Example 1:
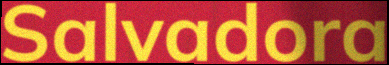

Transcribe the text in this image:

Salvadora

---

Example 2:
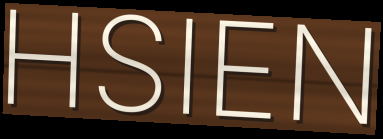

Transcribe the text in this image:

HSIEN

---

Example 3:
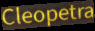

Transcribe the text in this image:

Cleopetra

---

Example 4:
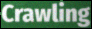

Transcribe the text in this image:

Crawling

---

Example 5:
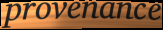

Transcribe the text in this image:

provenance